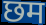
छम